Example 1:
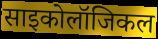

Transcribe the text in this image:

साइकोलॉजिकल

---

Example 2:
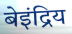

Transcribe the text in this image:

बेइंद्रिय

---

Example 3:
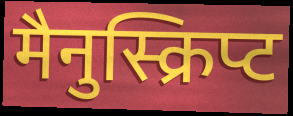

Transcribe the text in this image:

मैनुस्क्रिप्ट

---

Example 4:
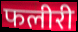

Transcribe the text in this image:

फलीरी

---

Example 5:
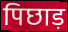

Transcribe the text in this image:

पिछाड़